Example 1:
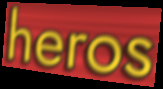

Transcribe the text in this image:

heros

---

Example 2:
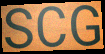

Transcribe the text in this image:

SCG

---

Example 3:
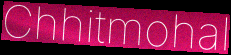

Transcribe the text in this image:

Chhitmohal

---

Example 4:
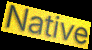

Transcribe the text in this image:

Native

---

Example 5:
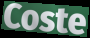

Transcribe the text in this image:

Coste